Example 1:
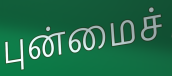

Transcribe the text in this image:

புன்மைச்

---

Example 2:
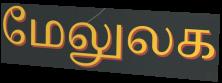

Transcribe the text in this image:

மேலுலக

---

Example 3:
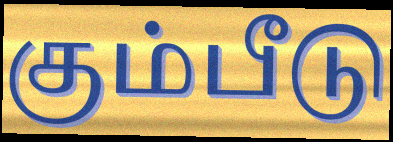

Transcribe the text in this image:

கும்பீடு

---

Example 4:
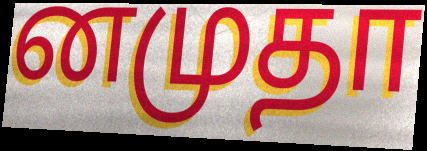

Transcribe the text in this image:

னமுதா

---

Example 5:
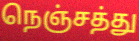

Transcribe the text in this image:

நெஞ்சத்து